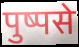
पुष्पसे